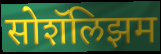
सोशॅलिझम